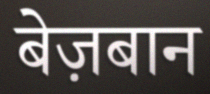
बेज़बान